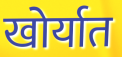
खोर्यात